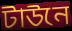
টাউনে